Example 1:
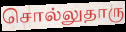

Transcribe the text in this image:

சொல்லுதாரு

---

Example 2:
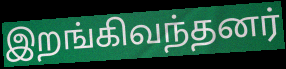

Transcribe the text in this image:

இறங்கிவந்தனர்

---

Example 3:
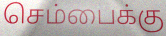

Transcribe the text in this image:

செம்பைக்கு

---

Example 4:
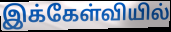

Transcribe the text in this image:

இக்கேள்வியில்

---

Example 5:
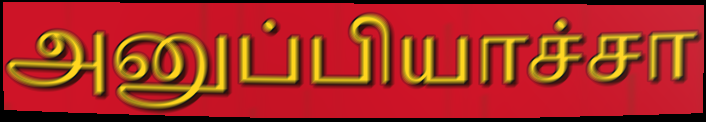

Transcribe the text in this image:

அனுப்பியாச்சா